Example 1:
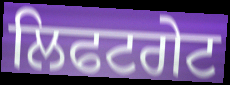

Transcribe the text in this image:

ਲਿਫਟਗੇਟ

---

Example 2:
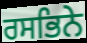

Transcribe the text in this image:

ਰਸਭਿਨੇ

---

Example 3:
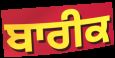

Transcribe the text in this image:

ਬਾਰੀਕ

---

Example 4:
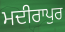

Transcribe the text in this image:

ਮਦੀਰਾਪੁਰ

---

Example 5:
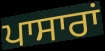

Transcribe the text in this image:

ਪਾਸਾਰਾਂ